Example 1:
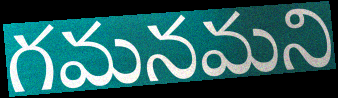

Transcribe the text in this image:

గమనమని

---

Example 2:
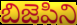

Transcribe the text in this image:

బిజెపిని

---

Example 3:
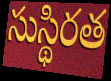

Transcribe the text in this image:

సుస్థిరత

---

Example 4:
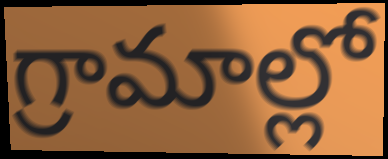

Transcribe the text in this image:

గ్రామాల్లో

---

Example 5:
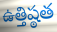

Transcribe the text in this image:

ఉత్తిష్ఠత